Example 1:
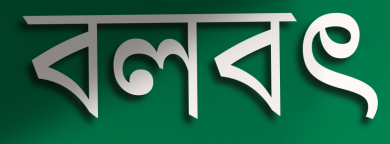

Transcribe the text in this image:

বলবৎ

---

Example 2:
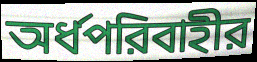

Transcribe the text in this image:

অর্ধপরিবাহীর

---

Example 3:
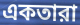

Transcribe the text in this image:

একতারা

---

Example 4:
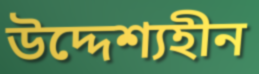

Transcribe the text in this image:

উদ্দেশ্যহীন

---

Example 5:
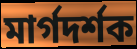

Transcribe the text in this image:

মার্গদর্শক